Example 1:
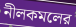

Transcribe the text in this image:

নীলকমলের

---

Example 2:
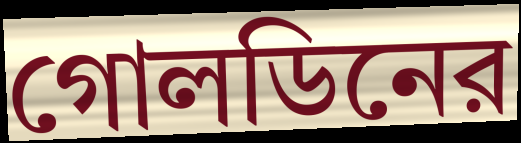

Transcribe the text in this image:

গোলডিনের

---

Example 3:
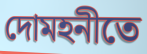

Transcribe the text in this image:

দোমহনীতে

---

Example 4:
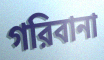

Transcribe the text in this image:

গরিবানা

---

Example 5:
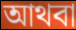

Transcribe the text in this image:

আথবা